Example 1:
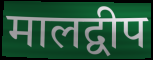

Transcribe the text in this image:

मालद्वीप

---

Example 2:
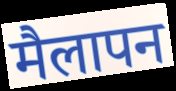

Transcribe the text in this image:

मैलापन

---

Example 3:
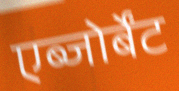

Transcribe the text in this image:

एब्जोर्बेंट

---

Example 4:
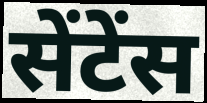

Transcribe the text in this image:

सेंटेंस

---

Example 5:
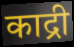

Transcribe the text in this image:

काद्री